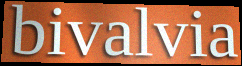
bivalvia